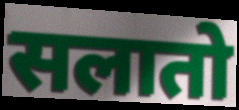
सलातो